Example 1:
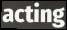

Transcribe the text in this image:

acting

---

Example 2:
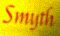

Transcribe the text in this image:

Smyth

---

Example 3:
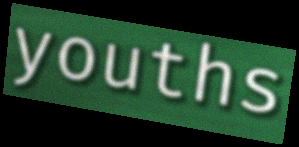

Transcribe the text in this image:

youths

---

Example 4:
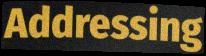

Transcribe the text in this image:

Addressing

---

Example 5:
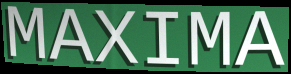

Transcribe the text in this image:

MAXIMA